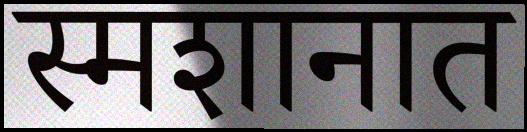
स्मशानात